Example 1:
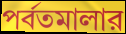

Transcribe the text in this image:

পর্বতমালার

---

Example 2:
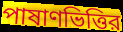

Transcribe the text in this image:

পাষাণভিত্তির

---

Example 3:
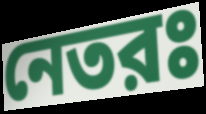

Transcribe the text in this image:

নেতরঃ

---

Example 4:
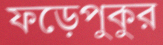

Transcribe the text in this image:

ফড়েপুকুর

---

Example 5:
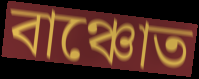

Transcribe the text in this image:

বাঞ্চোত